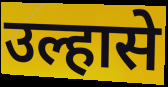
उल्हासे